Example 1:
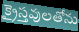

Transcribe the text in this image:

క్రైస్తవులతోను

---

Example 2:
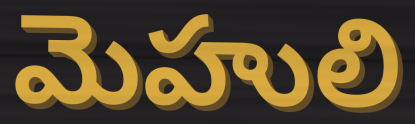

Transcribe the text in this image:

మెహులి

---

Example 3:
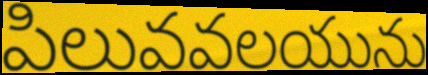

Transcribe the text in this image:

పిలువవలయును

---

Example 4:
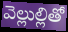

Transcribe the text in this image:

వెల్లుల్లితో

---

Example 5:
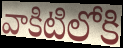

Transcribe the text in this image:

వాకిటిలోకి